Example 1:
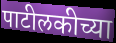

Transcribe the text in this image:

पाटीलकीच्या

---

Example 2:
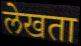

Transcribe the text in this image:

लेखता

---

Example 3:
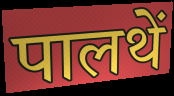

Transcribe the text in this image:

पालथें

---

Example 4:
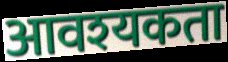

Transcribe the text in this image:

आवश्‍यकता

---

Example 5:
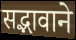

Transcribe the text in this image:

सद्भावाने